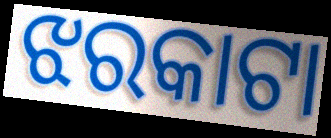
ଝରକାଟା